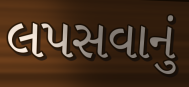
લપસવાનું